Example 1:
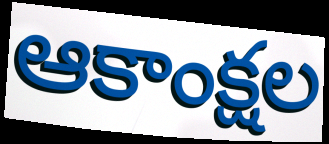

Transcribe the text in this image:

ఆకాంక్షల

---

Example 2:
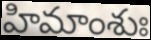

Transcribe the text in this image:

హిమాంశుః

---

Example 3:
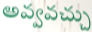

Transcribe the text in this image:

అవ్వవచ్చు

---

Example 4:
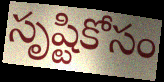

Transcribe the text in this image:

సృష్టికోసం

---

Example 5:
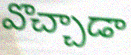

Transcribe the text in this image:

వొచ్చాడా